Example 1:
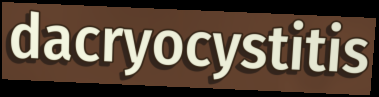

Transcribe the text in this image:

dacryocystitis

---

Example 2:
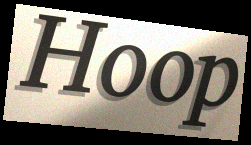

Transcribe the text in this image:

Hoop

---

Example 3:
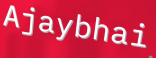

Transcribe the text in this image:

Ajaybhai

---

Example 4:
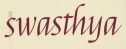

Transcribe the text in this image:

swasthya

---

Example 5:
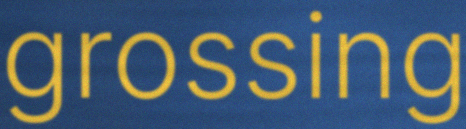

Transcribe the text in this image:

grossing